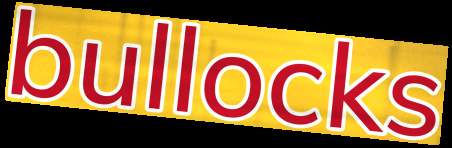
bullocks